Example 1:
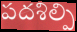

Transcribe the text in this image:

పదశిల్పి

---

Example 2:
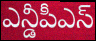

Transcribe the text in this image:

ఎన్డీపీఎస్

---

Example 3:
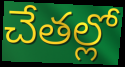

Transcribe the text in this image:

చేతల్లో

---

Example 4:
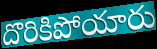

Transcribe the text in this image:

దొరికిపోయారు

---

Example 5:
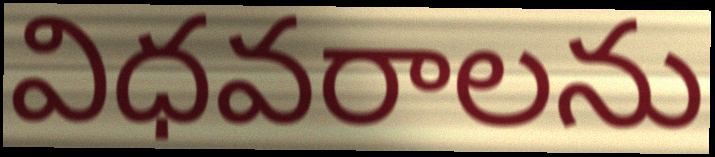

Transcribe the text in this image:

విధవరాలను